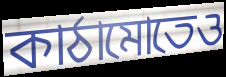
কাঠামোতেও